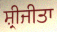
ਸ਼੍ਰੀਜੀਤਾ